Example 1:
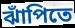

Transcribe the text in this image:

ঝাঁপিতে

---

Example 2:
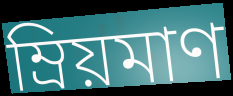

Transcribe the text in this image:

ম্রিয়মাণ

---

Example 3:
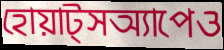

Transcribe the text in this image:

হোয়াট্‌সঅ্যাপেও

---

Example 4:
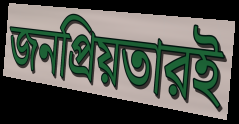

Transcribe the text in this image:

জনপ্রিয়তারই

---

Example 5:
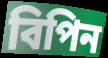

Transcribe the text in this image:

বিপিন